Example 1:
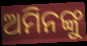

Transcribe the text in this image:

ଅମିନଙ୍କୁ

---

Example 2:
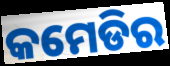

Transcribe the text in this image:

କମେଡିର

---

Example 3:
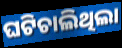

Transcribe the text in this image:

ଘଟିଚାଲିଥିଲା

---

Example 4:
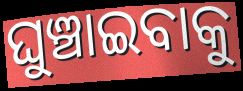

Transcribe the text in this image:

ଘୁଞ୍ଚାଇବାକୁ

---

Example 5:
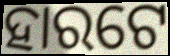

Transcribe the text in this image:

ହାରଟେ